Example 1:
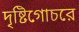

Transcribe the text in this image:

দৃষ্টিগোচরে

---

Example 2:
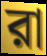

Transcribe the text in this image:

রা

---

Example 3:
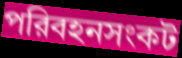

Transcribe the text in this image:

পরিবহনসংকট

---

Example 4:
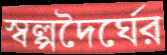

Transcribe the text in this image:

স্বল্পদৈর্ঘের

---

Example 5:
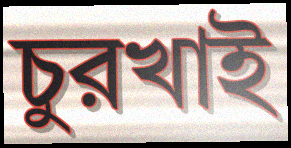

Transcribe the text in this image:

চুরখাই